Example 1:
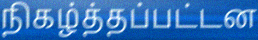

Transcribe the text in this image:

நிகழ்த்தப்பட்டன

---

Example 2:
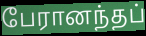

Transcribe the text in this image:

பேரானந்தப்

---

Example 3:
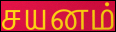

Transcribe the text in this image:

சயனம்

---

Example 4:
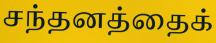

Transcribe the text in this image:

சந்தனத்தைக்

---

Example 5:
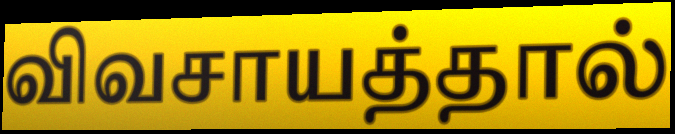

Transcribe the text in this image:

விவசாயத்தால்